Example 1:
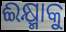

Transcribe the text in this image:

ଈକ୍ଷ୍ମାକୁ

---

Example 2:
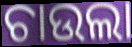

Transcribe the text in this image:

ଚାଉଲା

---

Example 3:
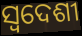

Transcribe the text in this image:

ସ୍ଵଦେଶୀ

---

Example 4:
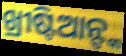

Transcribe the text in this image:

ଖ୍ରୀଷ୍ଟିଆନ୍ଙ୍କ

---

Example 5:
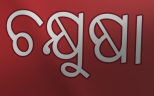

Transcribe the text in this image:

ଚକ୍ଷୁଷା